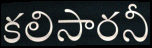
కలిసారనీ